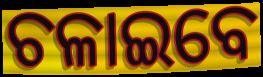
ଚଳାଇବେ